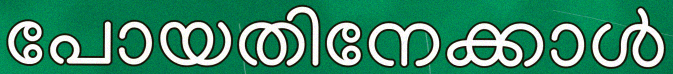
പോയതിനേക്കാൾ